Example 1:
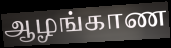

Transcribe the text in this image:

ஆழங்காண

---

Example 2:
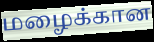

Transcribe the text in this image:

மழைக்கான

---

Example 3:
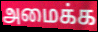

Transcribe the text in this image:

அமைக்க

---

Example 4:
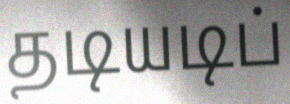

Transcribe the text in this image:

தடியடிப்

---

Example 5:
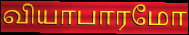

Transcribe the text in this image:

வியாபாரமோ